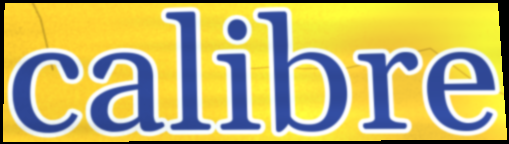
calibre